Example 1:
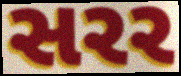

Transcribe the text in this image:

સરર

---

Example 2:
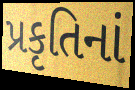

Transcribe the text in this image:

પ્રકૃતિનાં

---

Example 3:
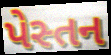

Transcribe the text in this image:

પેસ્તન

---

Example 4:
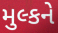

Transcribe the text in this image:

મુલ્કને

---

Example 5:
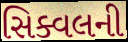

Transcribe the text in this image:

સિક્વલની